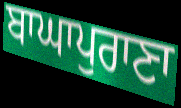
ਬਾਘਾਪੁਰਾਣਾ